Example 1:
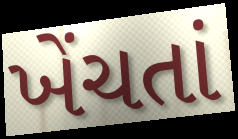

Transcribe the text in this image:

ખેંચતાં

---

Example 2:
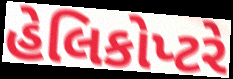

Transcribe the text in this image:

હેલિકોપ્ટરે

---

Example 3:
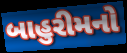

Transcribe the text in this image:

બાહુરીમનો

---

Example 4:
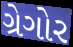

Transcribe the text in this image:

ગ્રેગોર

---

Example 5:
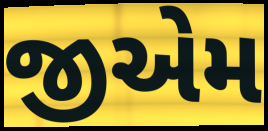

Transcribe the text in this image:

જીએમ